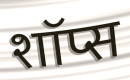
शॉप्स